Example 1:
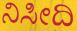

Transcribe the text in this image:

ನಿಸೀದಿ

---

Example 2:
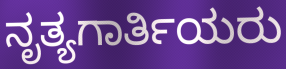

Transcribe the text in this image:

ನೃತ್ಯಗಾರ್ತಿಯರು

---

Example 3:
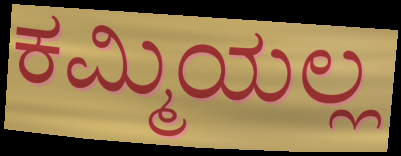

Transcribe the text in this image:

ಕಮ್ಮಿಯಲ್ಲ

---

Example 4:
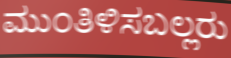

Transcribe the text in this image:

ಮುಂತಿಳಿಸಬಲ್ಲರು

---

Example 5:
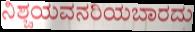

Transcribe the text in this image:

ನಿಶ್ಚಯವನರಿಯಬಾರದು